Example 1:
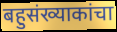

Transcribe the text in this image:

बहुसंख्याकांचा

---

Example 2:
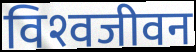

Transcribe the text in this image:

विश्वजीवन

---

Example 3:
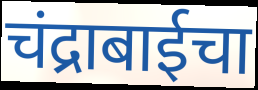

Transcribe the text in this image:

चंद्राबाईचा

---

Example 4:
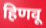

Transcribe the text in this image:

हिणवू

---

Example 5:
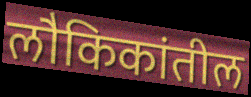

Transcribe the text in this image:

लौकिकांतील